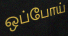
ஒப்போய்